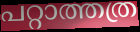
പറ്റാത്തത്ര